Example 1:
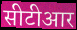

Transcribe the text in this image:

सीटीआर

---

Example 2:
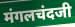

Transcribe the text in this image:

मंगलचंदजी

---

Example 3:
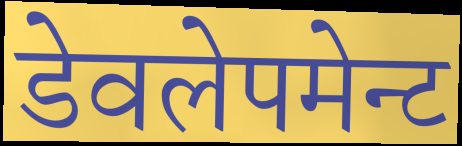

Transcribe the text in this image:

डेवलेपमेन्ट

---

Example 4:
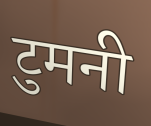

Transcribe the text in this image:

टुमनी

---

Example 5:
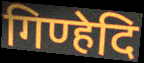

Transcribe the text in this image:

गिण्हेदि